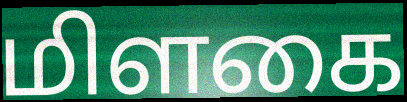
மிளகை